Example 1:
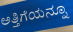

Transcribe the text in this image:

ಅತ್ತಿಗೆಯನ್ನೂ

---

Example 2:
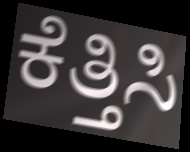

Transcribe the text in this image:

ಕೆತ್ತಿಸಿ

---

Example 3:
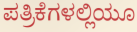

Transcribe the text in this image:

ಪತ್ರಿಕೆಗಳಲ್ಲಿಯೂ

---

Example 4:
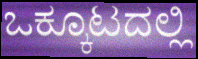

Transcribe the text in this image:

ಒಕ್ಕೂಟದಲ್ಲಿ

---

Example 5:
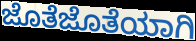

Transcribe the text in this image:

ಜೊತೆಜೊತೆಯಾಗಿ